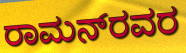
ರಾಮನ್‌ರವರ